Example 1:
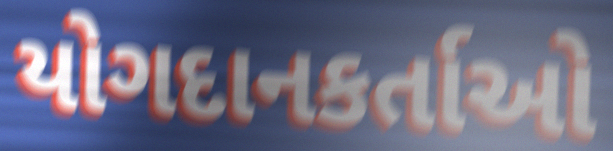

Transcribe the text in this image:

યોગદાનકર્તાઓ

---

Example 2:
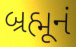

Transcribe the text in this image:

બ્રહ્મૂનં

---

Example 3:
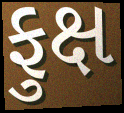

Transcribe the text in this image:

ફુક્ષ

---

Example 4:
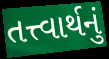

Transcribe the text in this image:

તત્ત્વાર્થનું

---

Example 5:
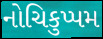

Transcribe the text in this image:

નોચિકુપ્પમ